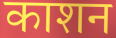
काशन